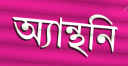
অ্যান্থনি